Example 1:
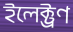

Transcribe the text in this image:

ইলেক্ট্ৰণ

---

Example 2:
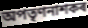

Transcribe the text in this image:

অপতৃণনাশকৰ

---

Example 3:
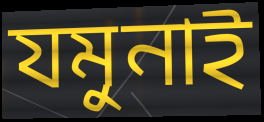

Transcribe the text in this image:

যমুনাই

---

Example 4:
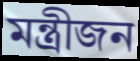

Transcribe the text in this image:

মন্ত্ৰীজন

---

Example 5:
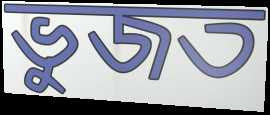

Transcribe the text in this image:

ভুজত